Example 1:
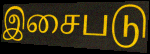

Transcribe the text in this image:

இசைபடு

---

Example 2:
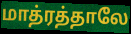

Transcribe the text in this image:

மாத்ரத்தாலே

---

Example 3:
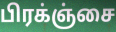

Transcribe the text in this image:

பிரக்ஞ்சை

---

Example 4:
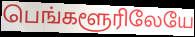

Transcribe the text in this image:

பெங்களூரிலேயே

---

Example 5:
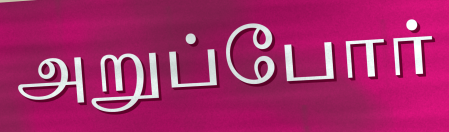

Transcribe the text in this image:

அறுப்போர்